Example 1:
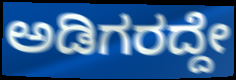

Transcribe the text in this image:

ಅಡಿಗರದ್ದೇ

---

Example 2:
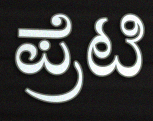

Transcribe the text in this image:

ಪ್ರೆಟಿ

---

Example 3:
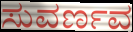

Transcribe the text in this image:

ಸುವರ್ಣವ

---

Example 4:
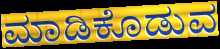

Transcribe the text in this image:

ಮಾಡಿಕೊಡುವ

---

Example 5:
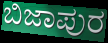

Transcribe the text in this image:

ಬಿಜಾಪುರ